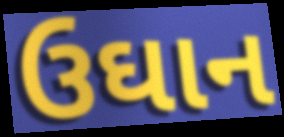
ઉઘાન